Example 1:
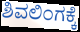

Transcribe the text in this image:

ಶಿವಲಿಂಗಕ್ಕೆ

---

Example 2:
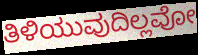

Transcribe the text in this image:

ತಿಳಿಯುವುದಿಲ್ಲವೋ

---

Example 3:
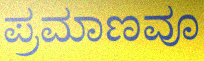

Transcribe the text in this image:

ಪ್ರಮಾಣವೂ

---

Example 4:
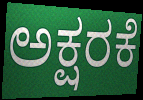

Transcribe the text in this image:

ಅಕ್ಷರಕೆ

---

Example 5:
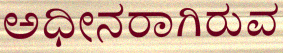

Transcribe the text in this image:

ಅಧೀನರಾಗಿರುವ